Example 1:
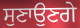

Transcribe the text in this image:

ਸੁਣਾਉਣਗੇ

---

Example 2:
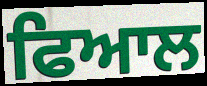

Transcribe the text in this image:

ਫਿਆਲ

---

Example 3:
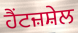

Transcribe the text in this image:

ਹੈਂਟਜ਼ਸ਼ੇਲ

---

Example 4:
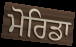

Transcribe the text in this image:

ਮੋਰਿਡਾ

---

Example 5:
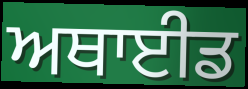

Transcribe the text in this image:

ਅਥਾਈਡ